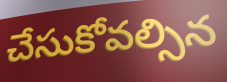
చేసుకోవల్సిన